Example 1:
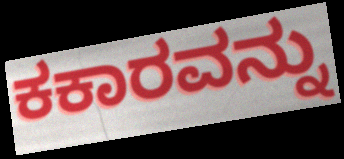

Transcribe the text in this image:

ಕಕಾರವನ್ನು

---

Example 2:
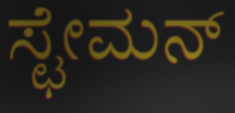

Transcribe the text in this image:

ಸ್ಟೇಮನ್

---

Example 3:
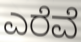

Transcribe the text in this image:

ಎರೆವೆ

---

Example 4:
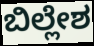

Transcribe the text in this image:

ಬಿಲ್ಲೇಶ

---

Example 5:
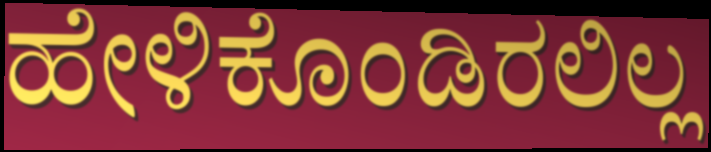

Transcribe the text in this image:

ಹೇಳಿಕೊಂಡಿರಲಿಲ್ಲ